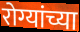
रोग्यांच्या